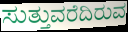
ಸುತ್ತುವರೆದಿರುವ